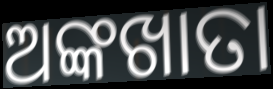
ଅଙ୍କଖାତା